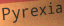
Pyrexia